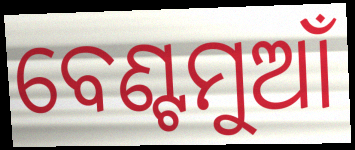
ବେଣ୍ଟମୁଆଁ